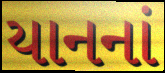
યાનનાં